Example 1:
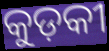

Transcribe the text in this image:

କୁଡ଼କୀ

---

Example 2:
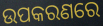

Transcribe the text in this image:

ଉପକରଣରେ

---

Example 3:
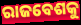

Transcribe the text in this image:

ରାଜବେଶକୁ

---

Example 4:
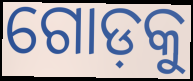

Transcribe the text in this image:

ଗୋଡ଼କୁ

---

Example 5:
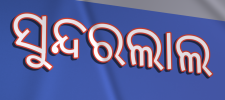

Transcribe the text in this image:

ସୁନ୍ଦରଲାଲ